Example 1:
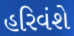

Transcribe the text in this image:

હરિવંશે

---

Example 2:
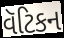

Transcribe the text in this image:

વૅટિકન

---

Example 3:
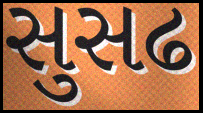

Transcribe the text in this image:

સુસઢ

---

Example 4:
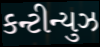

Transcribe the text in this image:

કન્ટીન્યુઝ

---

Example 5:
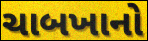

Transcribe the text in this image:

ચાબખાનો